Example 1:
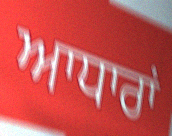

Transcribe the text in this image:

ਆਧਾਰਾਂ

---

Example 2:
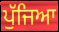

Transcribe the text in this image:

ਪੁੱਜਿਆ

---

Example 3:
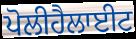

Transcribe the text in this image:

ਪੋਲੀਹੈਲਾਈਟ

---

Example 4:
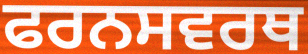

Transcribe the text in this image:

ਫਰਨਸਵਰਥ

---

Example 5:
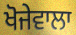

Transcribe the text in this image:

ਖੋਜੇਵਾਲਾ